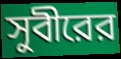
সুবীরের